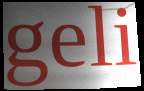
geli